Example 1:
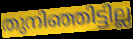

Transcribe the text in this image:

തുനിഞ്ഞിട്ടില്ല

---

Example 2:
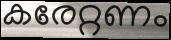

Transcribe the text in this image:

കരേറ്റണം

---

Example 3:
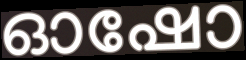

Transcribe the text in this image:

ഓഷോ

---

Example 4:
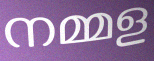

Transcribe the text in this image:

നമ്മള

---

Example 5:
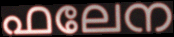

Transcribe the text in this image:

ഫലേന